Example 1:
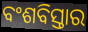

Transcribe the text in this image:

ବଂଶବିସ୍ତାର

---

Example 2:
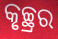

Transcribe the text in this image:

କୃଚ୍ଛ୍ରର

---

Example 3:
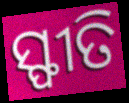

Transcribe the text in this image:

ସ୍ଫୀତି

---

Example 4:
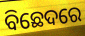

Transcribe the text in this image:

ବିଛେଦରେ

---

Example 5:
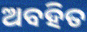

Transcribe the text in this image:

ଅବହିତ